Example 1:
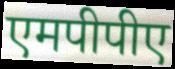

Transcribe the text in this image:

एमपीपीए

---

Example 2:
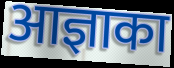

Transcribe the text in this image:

आज्ञाका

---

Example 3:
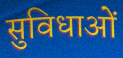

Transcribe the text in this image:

सुविधाओें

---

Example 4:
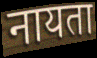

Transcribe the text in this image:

नायता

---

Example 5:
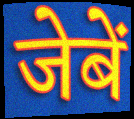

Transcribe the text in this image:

जेबें